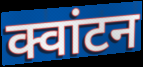
क्वांटन